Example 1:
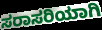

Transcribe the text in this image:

ಸರಾಸರಿಯಾಗಿ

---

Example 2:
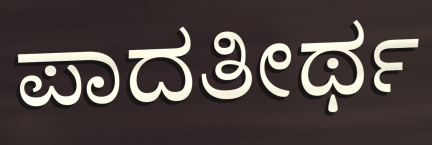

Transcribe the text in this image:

ಪಾದತೀರ್ಥ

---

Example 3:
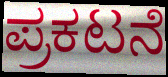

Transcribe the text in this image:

ಪ್ರಕಟನೆ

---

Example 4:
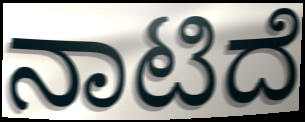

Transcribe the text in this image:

ನಾಟಿದೆ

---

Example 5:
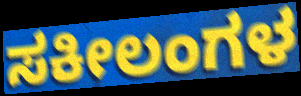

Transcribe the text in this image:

ಸಕೀಲಂಗಳ